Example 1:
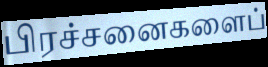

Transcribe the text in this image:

பிரச்சனைகளைப்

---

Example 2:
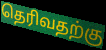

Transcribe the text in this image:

தெரிவதற்கு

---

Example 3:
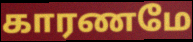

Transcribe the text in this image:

காரணமே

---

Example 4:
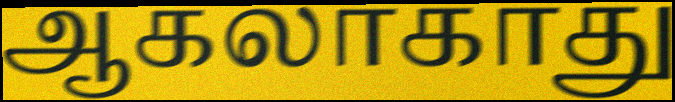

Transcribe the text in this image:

ஆகலாகாது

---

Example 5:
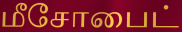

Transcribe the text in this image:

மீசோபைட்